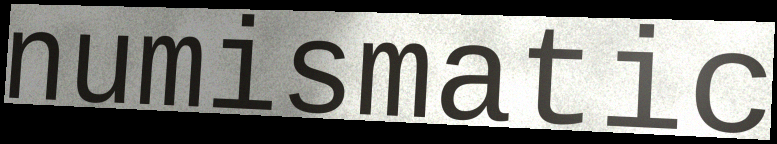
numismatic